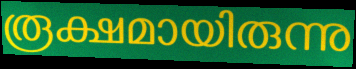
രൂക്ഷമായിരുന്നു